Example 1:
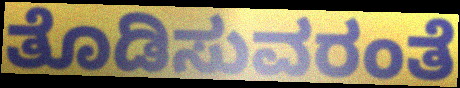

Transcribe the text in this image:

ತೊಡಿಸುವರಂತೆ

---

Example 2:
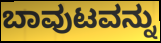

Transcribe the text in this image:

ಬಾವುಟವನ್ನು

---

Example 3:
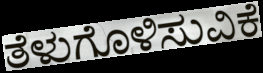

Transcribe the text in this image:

ತೆಳುಗೊಳಿಸುವಿಕೆ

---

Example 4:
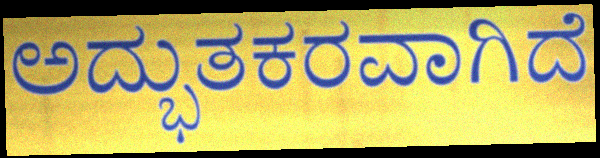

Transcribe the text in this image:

ಅದ್ಭುತಕರವಾಗಿದೆ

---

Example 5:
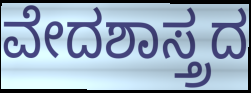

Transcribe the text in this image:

ವೇದಶಾಸ್ತ್ರದ